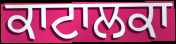
ਕਾਟਾਲਕਾ